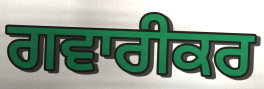
ਗਵਾਰੀਕਰ